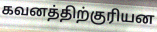
கவனத்திற்குரியன